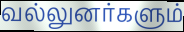
வல்லுனர்களும்